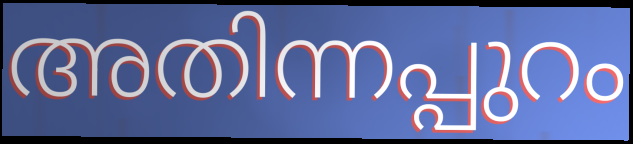
അതിന്നപ്പുറം